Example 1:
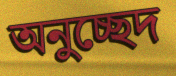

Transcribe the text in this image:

অনুচ্ছেদ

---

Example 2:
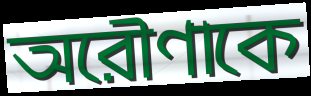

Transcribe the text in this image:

অরৌণাকে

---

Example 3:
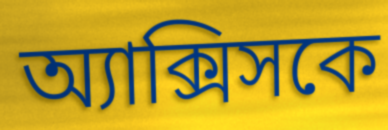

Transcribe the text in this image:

অ্যাক্সিসকে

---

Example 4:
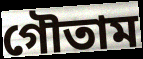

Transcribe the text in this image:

গৌতাম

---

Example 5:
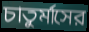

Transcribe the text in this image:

চাতুর্মাসের